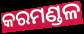
କରମଣ୍ଡଳ